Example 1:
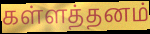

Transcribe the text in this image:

கள்ளத்தனம்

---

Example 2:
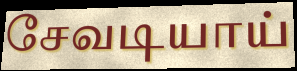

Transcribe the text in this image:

சேவடியாய்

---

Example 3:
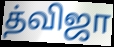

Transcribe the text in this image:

த்விஜா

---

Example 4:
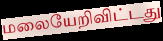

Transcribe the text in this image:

மலையேறிவிட்டது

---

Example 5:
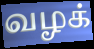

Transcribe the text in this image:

வழக்